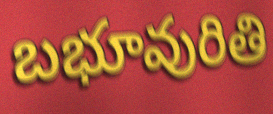
బభూవురితి